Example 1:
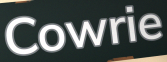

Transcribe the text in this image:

Cowrie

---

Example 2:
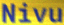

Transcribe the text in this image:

Nivu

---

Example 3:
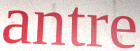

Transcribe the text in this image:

antre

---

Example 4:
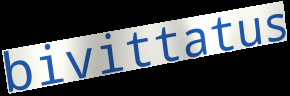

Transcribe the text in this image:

bivittatus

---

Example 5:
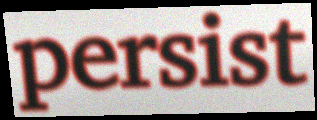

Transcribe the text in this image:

persist